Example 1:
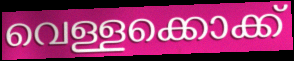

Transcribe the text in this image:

വെള്ളക്കൊക്ക്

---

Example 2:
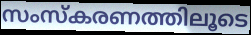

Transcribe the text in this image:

സംസ്കരണത്തിലൂടെ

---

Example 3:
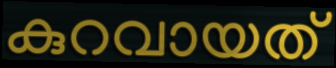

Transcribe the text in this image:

കുറവായത്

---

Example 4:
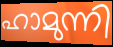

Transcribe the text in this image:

ഹാമുന്നി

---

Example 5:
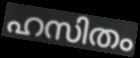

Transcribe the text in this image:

ഹസിതം